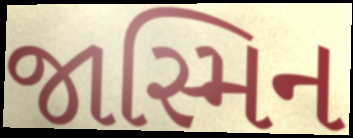
જાસ્મિન